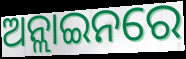
ଅନ୍ଲାଇନରେ